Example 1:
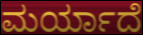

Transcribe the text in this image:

ಮರ್ಯಾದೆ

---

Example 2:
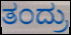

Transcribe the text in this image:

ತಂದ್ರು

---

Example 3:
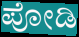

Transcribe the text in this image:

ಪೋಡಿ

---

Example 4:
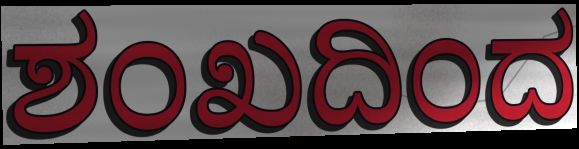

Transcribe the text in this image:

ಶಂಖದಿಂದ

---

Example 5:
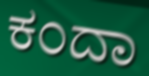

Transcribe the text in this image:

ಕಂದಾ